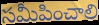
సమీపించాలి